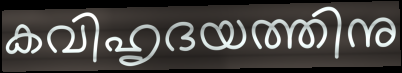
കവിഹൃദയത്തിനു